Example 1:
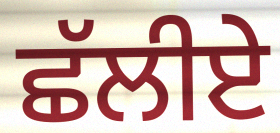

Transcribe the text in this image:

ਛੱਲੀਏ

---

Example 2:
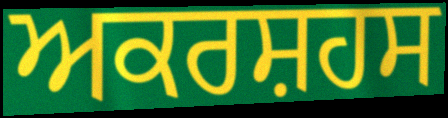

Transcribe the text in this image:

ਅਕਰਸ਼ਹਸ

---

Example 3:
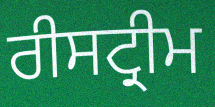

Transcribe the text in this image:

ਰੀਸਟ੍ਰੀਮ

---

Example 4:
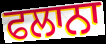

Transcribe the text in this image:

ਫਲਾਨਾ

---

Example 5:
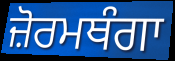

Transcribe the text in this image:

ਜ਼ੋਰਮਥੰਗਾ